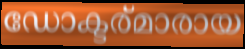
ഡോക്ടര്മാരായ